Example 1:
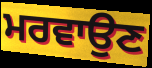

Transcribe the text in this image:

ਮਰਵਾਉਣ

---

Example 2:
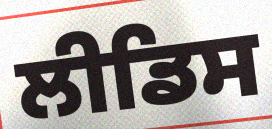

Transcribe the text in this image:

ਲੀਡਿਸ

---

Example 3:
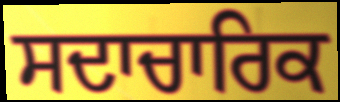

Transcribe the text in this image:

ਸਦਾਚਾਰਿਕ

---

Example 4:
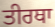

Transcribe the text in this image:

ਤੀਰਥਾ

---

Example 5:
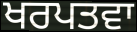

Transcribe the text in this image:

ਖਰਪਤਵਾ